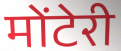
मोंटेरी